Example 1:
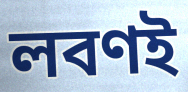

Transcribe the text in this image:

লবণই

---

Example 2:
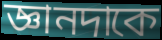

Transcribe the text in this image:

জ্ঞানদাকে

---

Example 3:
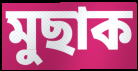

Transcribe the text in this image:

মুছাক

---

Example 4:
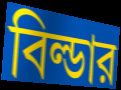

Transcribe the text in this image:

বিল্ডার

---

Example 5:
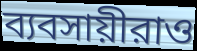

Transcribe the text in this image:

ব্যবসায়ীরাও